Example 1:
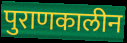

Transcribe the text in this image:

पुराणकालीन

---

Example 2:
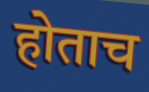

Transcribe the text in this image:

होताच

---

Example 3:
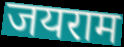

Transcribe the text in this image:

जयराम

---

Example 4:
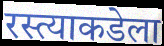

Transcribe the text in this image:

रस्त्याकडेला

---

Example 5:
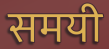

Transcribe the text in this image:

समयी